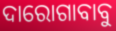
ଦାରୋଗାବାବୁ